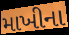
માખીના